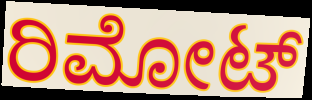
ರಿಮೋಟ್